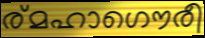
ര്മഹാഗൌരീ